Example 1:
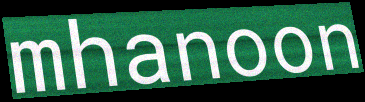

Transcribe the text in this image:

mhanoon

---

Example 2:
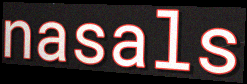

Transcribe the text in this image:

nasals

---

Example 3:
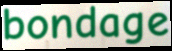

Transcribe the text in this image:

bondage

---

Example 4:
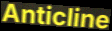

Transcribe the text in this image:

Anticline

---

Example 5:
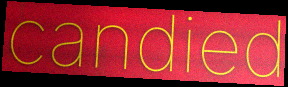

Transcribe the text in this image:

candied